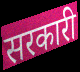
सरकारी